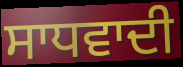
ਸਾਧਵਾਦੀ